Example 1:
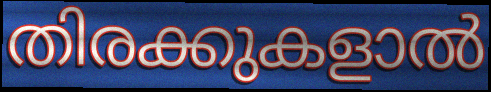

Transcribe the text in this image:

തിരക്കുകളാൽ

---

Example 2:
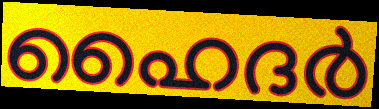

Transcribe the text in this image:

ഹൈദർ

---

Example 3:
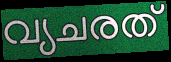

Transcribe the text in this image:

വ്യചരത്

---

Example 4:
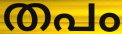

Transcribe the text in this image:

തപം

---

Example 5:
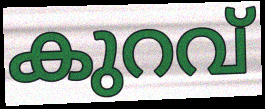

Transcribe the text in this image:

കുറവ്